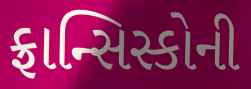
ફ્રાન્સિસ્કોની